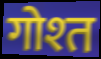
गोश्‍त